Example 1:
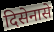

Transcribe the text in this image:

दिसेनासे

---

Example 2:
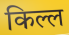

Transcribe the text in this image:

किल्ल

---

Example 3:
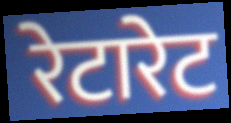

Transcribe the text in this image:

रेटारेट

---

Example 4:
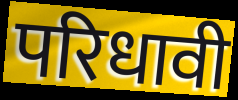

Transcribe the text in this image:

परिधावी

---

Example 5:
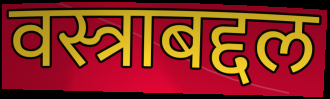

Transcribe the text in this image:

वस्त्राबद्दल